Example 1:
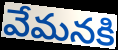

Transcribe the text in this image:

వేమనకి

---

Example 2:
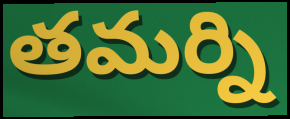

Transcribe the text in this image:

తమర్ని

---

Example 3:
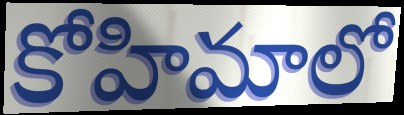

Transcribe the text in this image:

కోహిమాలో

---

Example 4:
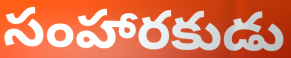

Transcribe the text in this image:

సంహారకుడు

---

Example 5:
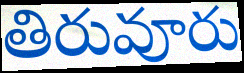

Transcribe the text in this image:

తిరువూరు